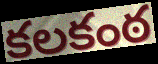
కలకంఠ